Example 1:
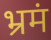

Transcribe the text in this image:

भ्रमं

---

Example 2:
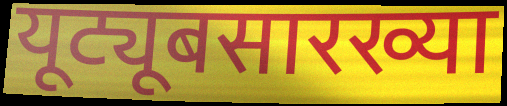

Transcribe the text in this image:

यूट्यूबसारख्या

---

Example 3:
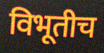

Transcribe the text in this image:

विभूतीच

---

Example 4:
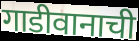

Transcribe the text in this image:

गाडीवानाची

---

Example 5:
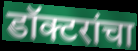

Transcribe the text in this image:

डॉक्टरांचा